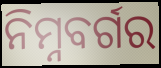
ନିମ୍ନବର୍ଗର